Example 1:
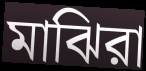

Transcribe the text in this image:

মাঝিরা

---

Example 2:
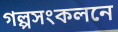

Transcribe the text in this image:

গল্পসংকলনে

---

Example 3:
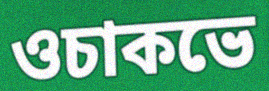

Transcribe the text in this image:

ওচাকভে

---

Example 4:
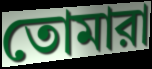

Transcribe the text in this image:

তোমারা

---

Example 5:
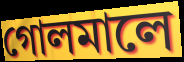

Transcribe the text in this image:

গোলমালে